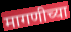
मागणीच्या